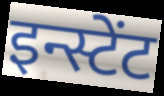
इन्स्टेंट